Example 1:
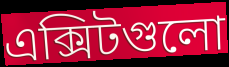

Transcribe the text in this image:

এক্সিটগুলো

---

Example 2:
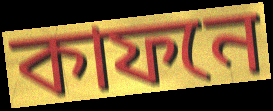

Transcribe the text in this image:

কাফনে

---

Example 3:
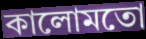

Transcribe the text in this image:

কালোমতো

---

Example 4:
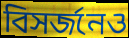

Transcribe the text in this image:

বিসর্জনেও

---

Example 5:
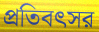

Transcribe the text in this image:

প্রতিবৎসর